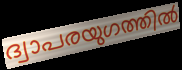
ദ്വാപരയുഗത്തിൽ